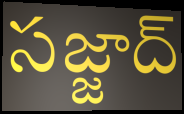
సజ్జాద్